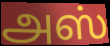
அஸ்